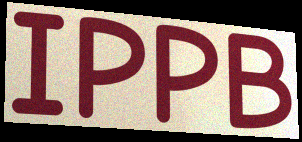
IPPB